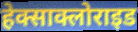
हेक्साक्लोराइड